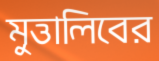
মুত্তালিবের